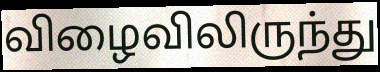
விழைவிலிருந்து